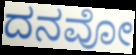
ದನವೋ